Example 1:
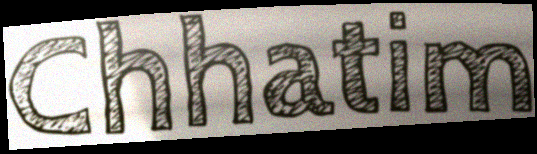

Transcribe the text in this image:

Chhatim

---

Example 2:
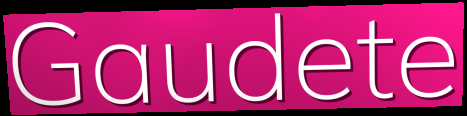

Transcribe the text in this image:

Gaudete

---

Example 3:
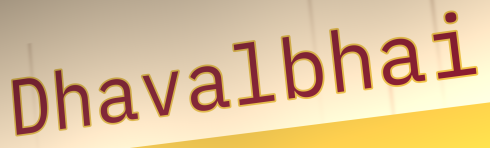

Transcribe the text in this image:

Dhavalbhai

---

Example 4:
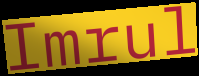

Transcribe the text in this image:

Imrul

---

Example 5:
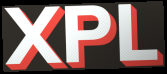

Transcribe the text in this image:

XPL